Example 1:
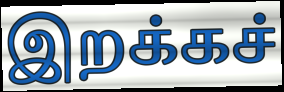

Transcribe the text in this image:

இறக்கச்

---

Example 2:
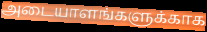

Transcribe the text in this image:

அடையாளங்களுக்காக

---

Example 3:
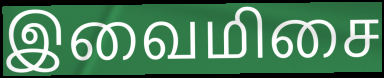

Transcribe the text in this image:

இவைமிசை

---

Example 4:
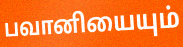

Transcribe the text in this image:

பவானியையும்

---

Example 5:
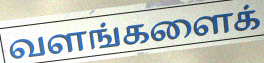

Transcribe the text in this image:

வளங்களைக்